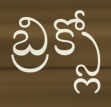
బ్రిక్స్లో